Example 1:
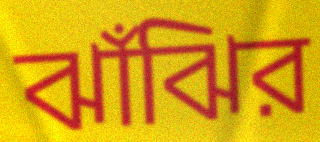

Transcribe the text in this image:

ঝাঁঝির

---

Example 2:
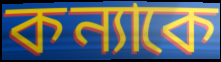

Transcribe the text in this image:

কন্যাকে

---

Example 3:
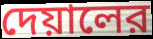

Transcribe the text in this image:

দেয়ালের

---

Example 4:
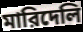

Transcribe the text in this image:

মারিদেলি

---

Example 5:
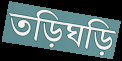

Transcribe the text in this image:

তড়িঘড়ি